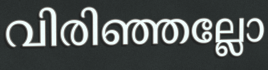
വിരിഞ്ഞല്ലോ